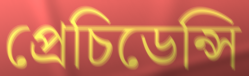
প্ৰেচিডেন্সি